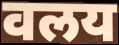
वलय